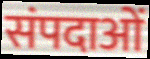
संपदाओं